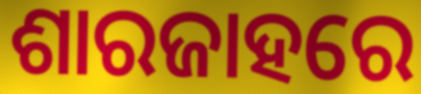
ଶାରଜାହରେ